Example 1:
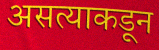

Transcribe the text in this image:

असत्याकडून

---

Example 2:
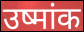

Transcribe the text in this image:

उष्मांक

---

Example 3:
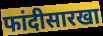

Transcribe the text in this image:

फांदीसारखा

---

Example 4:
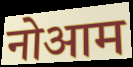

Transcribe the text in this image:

नोआम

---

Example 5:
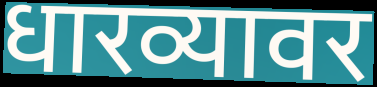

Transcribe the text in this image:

धारव्यावर